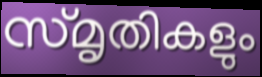
സ്മൃതികളും